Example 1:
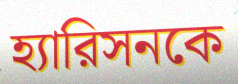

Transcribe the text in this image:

হ্যারিসনকে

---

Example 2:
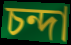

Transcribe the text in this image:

চন্দা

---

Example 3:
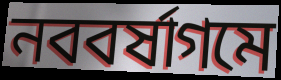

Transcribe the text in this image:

নববর্ষাগমে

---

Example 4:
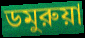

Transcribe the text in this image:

ডমুরুয়া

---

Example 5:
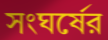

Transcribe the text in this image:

সংঘর্ষের